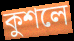
কুশলে